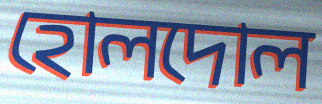
হোলদোল